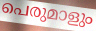
പെരുമാളും